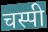
चस्पी